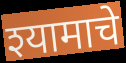
श्यामाचे